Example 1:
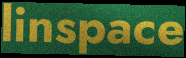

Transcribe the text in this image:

linspace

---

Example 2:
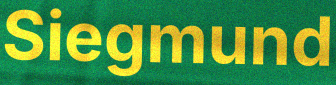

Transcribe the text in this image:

Siegmund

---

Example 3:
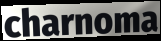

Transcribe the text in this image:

charnoma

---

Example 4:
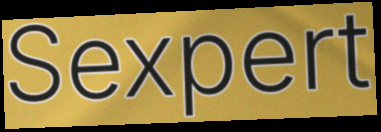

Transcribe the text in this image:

Sexpert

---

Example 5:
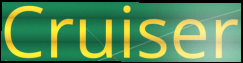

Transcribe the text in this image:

Cruiser